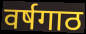
वर्षगाठ